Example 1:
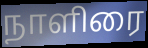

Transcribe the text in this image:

நாளிரை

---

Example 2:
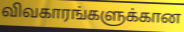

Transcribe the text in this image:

விவகாரங்களுக்கான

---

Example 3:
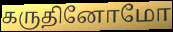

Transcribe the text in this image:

கருதினோமோ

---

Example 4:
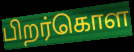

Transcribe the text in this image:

பிறர்கொள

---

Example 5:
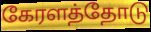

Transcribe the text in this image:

கேரளத்தோடு